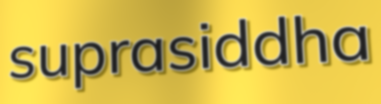
suprasiddha